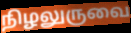
நிழலுருவை